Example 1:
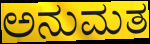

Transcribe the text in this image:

ಅನುಮತ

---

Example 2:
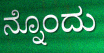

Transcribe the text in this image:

ನ್ನೊಂದು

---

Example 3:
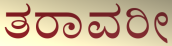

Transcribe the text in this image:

ತರಾವರೀ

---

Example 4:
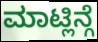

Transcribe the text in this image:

ಮಾಟ್ಲಿನ್ಗೆ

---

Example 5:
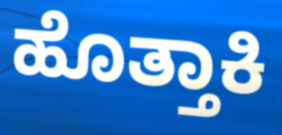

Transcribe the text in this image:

ಹೊತ್ತಾಕಿ